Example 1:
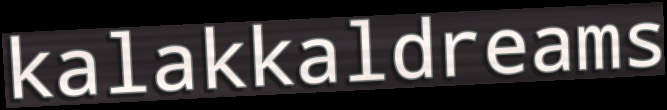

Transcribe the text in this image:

kalakkaldreams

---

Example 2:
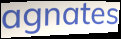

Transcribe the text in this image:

agnates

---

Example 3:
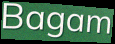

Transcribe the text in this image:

Bagam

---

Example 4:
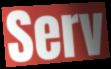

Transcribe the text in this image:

Serv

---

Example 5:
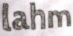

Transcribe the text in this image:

lahm